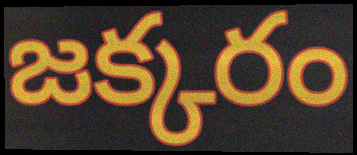
జక్కరం